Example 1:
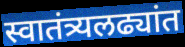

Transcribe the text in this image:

स्वातंत्र्यलढ्यांत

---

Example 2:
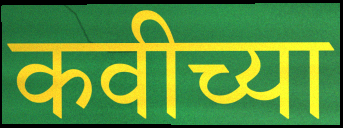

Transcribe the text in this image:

कवीच्या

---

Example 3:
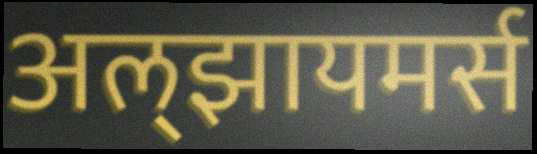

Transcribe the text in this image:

अल्झायमर्स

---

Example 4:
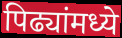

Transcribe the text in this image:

पिढ्यांमध्ये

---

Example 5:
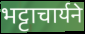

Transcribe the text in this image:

भट्टाचार्यने